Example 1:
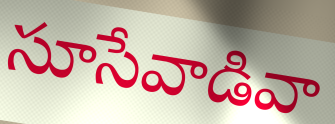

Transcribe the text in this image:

సూసేవాడివా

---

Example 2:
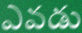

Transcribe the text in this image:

ఎవడు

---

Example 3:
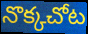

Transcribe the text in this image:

నొక్కచోట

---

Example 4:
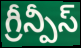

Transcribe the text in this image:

గ్రీన్పీస్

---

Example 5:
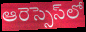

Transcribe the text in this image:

ఆరెస్సెస్‌లో